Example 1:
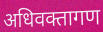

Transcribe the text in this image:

अधिवक्तागण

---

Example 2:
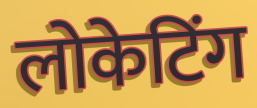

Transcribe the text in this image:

लोकेटिंग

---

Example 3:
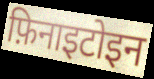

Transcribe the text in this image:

फ़िनाइटोइन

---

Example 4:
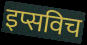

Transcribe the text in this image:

इप्सविच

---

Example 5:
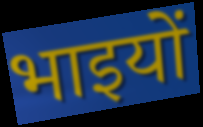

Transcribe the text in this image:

भाइयों